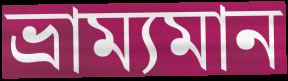
ভ্রাম্যমান